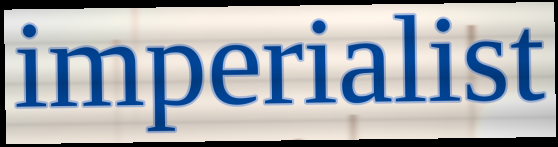
imperialist